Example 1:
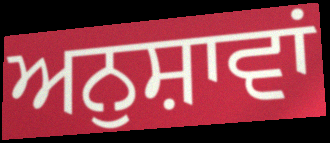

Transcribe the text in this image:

ਅਨੁਸ਼ਾਵਾਂ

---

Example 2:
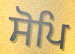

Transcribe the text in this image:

ਸੋਪਿ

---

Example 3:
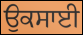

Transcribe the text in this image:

ਉਕਸਾਈ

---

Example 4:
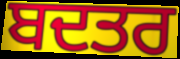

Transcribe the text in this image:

ਬਦਤਰ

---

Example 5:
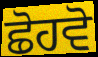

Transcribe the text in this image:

ਛੋਹਵੋ